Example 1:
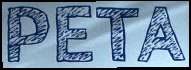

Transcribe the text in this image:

PETA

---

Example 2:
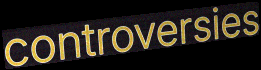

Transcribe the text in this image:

controversies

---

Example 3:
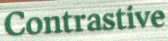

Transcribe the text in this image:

Contrastive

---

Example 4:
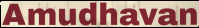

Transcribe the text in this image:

Amudhavan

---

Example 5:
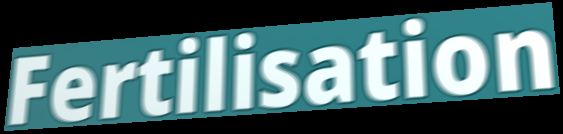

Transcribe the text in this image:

Fertilisation